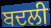
ਬਦਲੀ